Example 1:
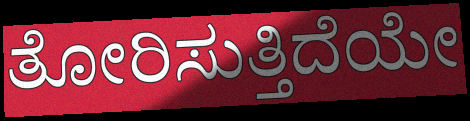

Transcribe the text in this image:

ತೋರಿಸುತ್ತಿದೆಯೇ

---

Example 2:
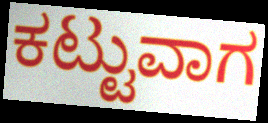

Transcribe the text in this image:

ಕಟ್ಟುವಾಗ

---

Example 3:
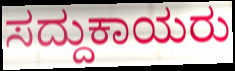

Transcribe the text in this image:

ಸದ್ದುಕಾಯರು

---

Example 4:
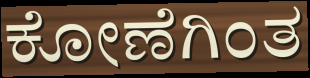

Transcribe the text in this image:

ಕೋಣೆಗಿಂತ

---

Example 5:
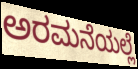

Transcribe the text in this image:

ಅರಮನೆಯಲ್ಲೆ